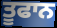
ਤੂਫਾਨ